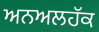
ਅਨਅਲਹੱਕ